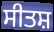
ਸੀਤਸ਼